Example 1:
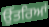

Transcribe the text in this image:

ਉੱਤਰਿਆਂ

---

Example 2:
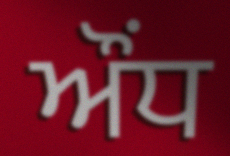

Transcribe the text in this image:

ਔਂਧ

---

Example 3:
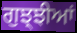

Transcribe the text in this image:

ਗੁਝ੍ਝੀਆਂ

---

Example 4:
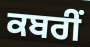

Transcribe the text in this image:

ਕਬਰੀਂ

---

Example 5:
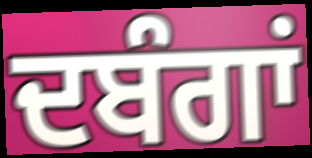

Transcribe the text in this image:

ਦਬੰਗਾਂ